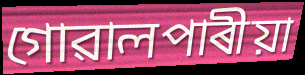
গোৱালপাৰীয়া